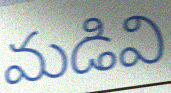
మడివి